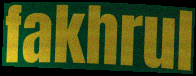
fakhrul